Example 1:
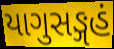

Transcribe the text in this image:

યાગુસઙ્ગહં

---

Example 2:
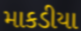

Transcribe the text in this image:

માકડીયા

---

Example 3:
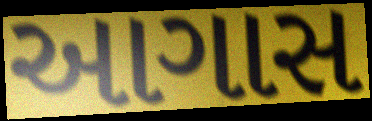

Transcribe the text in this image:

આગાસ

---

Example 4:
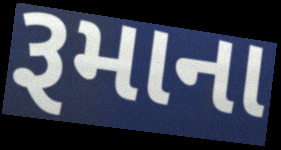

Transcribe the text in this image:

રૂમાના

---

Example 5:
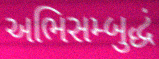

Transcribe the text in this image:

અભિસમ્બુદ્ધં